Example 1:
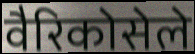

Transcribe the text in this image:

वैरिकोसेले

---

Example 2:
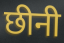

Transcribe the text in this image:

छीनी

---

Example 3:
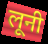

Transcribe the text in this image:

लूनी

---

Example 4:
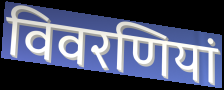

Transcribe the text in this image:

विवरणियां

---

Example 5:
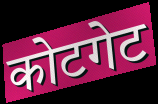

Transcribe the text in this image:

कोटगेट